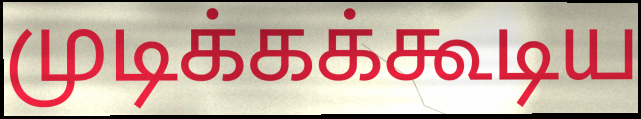
முடிக்கக்கூடிய